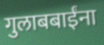
गुलाबबाईंना